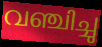
വഞ്ചിച്ചു